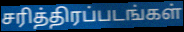
சரித்திரப்படங்கள்